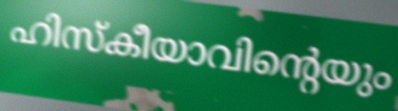
ഹിസ്കീയാവിന്റെയും